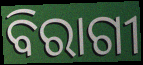
ବିରାଗୀ